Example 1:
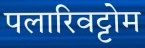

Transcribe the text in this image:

पलारिवट्टोम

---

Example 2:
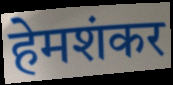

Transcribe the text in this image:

हेमशंकर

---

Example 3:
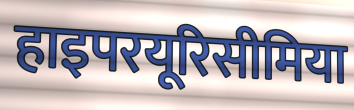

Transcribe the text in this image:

हाइपरयूरिसीमिया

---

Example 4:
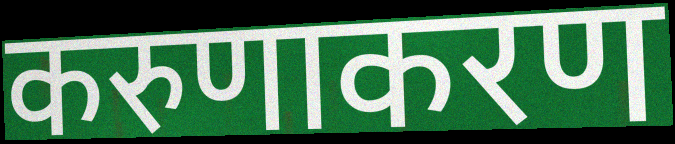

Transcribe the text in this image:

करुणाकरण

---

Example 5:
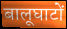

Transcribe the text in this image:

बालूघाटों